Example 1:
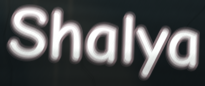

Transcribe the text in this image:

Shalya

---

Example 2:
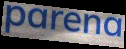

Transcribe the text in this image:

parena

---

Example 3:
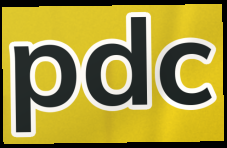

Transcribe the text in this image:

pdc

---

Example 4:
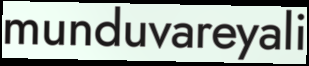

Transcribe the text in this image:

munduvareyali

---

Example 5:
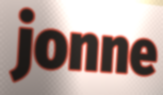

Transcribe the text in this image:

jonne